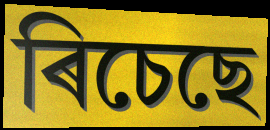
ৰিচেছে